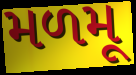
મળમૂ